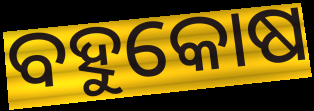
ବହୁକୋଷ